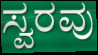
ಸ್ವರವು